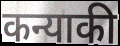
कन्याकी